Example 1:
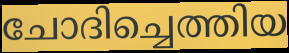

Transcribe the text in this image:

ചോദിച്ചെത്തിയ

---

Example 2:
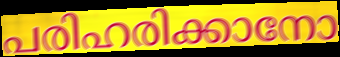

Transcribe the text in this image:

പരിഹരിക്കാനോ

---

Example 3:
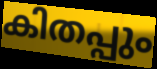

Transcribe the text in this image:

കിതപ്പും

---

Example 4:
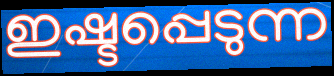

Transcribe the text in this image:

ഇഷ്ടപ്പെടുന്ന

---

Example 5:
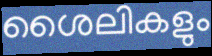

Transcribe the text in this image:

ശൈലികളും